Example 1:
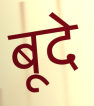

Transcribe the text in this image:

बूदे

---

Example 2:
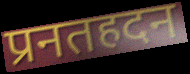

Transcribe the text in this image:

प्रनतहदन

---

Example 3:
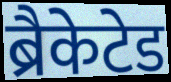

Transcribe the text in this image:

ब्रैकेटेड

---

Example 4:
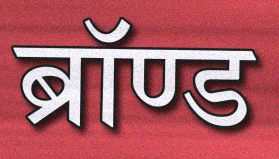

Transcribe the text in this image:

ब्रॉण्ड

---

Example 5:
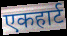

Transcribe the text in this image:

एकहार्ट